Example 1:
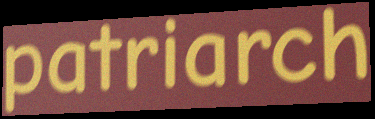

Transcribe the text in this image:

patriarch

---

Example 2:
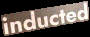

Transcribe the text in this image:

inducted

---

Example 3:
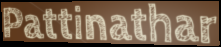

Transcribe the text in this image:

Pattinathar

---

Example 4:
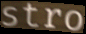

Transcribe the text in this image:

stro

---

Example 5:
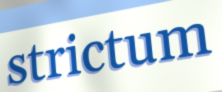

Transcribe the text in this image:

strictum